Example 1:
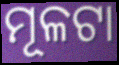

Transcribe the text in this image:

ମୂଳଟା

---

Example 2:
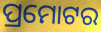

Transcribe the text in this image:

ପ୍ରମୋଟର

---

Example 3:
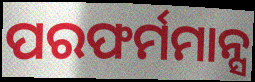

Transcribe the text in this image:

ପରଫର୍ମମାନ୍ସ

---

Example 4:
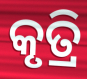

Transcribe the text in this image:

କୃତ୍ରି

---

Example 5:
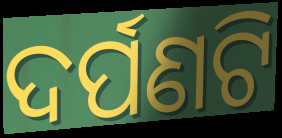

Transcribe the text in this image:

ଦର୍ପଣଟି